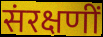
संरक्षणीं